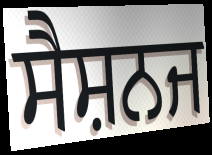
ਸੈਸ਼ਨਜ